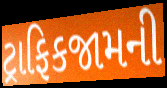
ટ્રાફિકજામની